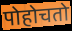
पोहोचतो